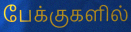
பேக்குகளில்